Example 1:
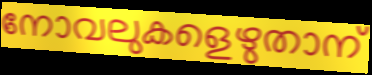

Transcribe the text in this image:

നോവലുകളെഴുതാന്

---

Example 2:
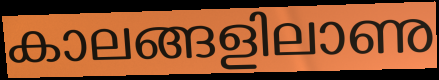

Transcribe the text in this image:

കാലങ്ങളിലാണു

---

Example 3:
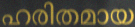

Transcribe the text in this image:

ഹരിതമായ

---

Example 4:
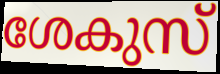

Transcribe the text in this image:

ശേകുസ്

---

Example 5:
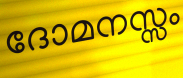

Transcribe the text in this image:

ദോമനസ്സം